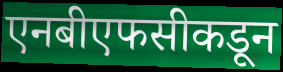
एनबीएफसीकडून